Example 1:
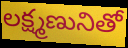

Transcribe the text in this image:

లక్ష్మణునితో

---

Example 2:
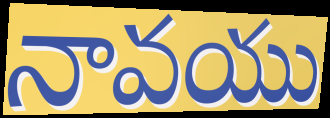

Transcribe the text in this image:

నావయు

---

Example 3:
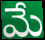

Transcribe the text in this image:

మే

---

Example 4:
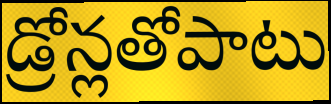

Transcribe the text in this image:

డ్రోన్లతోపాటు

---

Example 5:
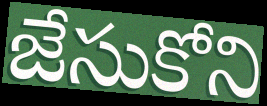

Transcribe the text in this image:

జేసుకోని